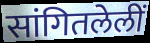
सांगितलेलीं